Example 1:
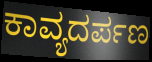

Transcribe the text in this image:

ಕಾವ್ಯದರ್ಪಣ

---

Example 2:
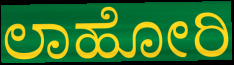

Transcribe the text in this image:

ಲಾಹೋರಿ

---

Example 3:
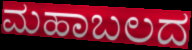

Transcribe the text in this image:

ಮಹಾಬಲದ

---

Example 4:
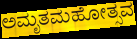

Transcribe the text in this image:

ಅಮೃತಮಹೋತ್ಸವ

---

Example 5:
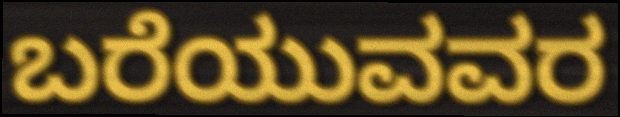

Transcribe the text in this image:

ಬರೆಯುವವರ